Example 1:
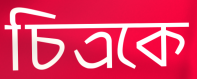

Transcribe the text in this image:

চিত্ৰকে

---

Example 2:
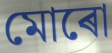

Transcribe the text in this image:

মোৰো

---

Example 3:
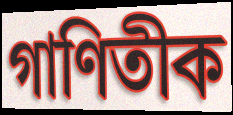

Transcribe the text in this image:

গাণিতীক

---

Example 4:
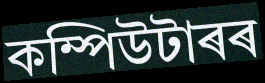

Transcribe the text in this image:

কম্পিউটাৰৰ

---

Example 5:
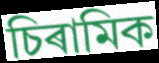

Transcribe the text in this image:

চিৰামিক